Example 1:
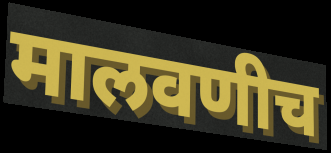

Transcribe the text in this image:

मालवणीच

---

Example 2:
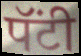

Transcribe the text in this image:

पॅंटी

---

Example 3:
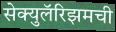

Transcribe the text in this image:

सेक्युलॅरिझमची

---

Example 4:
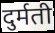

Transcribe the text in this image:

दुर्मती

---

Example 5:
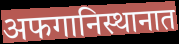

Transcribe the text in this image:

अफगानिस्थानात